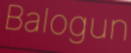
Balogun